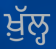
ਖ਼ੁੱਲ੍ਹ